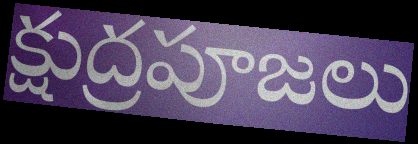
క్షుద్రపూజలు